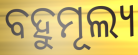
ବହୁମୂଲ୍ୟ